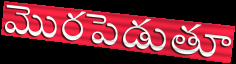
మొరపెడుతూ